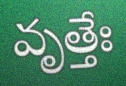
వృత్తేః